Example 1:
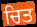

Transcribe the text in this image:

ਚਿਤ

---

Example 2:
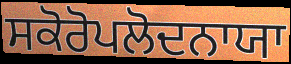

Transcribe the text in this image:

ਸਕੋਰੋਪਲੋਦਨਾਯਾ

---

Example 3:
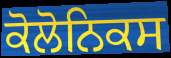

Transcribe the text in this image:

ਕੋਲੋਨਿਕਸ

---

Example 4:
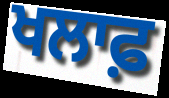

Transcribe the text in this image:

ਖਲਾਫ਼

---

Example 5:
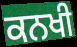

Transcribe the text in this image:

ਕਨਖੀ